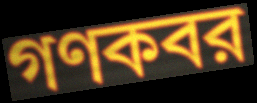
গণকবর